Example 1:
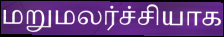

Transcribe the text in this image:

மறுமலர்ச்சியாக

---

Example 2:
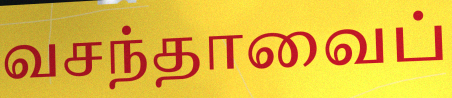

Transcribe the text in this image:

வசந்தாவைப்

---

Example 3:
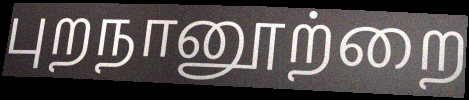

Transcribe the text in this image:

புறநானூற்றை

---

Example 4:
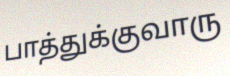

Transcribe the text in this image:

பாத்துக்குவாரு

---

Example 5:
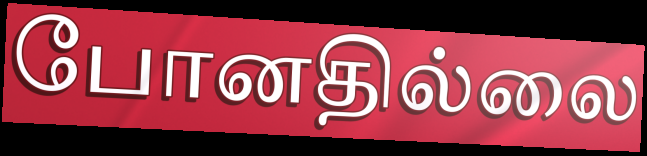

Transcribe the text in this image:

போனதில்லை